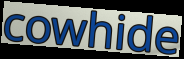
cowhide